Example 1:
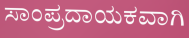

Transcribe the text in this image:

ಸಾಂಪ್ರದಾಯಕವಾಗಿ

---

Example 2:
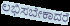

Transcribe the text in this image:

ಲಭಿಸಬೇಕಾದರೆ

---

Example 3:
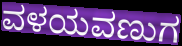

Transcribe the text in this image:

ವಳಯವಣುಗ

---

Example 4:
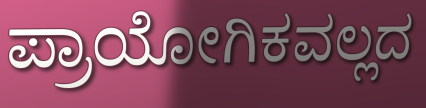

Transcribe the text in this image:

ಪ್ರಾಯೋಗಿಕವಲ್ಲದ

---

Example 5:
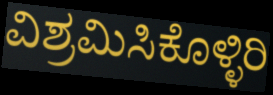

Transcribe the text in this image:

ವಿಶ್ರಮಿಸಿಕೊಳ್ಳಿರಿ